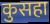
कुसहा